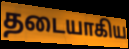
தடையாகிய